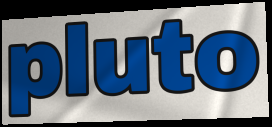
pluto